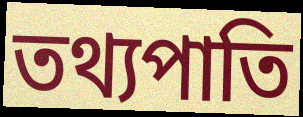
তথ্যপাতি